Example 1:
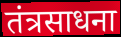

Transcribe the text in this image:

तंत्रसाधना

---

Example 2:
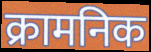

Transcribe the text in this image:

क्रामनिक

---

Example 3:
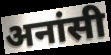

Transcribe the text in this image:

अनांसी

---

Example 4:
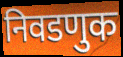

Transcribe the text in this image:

निवडणुक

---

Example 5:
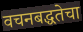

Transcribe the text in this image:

वचनबद्धतेचा